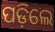
ପଡ଼ିଲେ